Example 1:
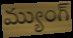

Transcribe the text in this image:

మ్యుంగ్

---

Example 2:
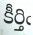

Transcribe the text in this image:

కీర్తిఁ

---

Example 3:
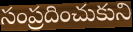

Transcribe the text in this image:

సంప్రదించుకుని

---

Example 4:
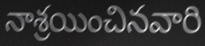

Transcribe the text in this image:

నాశ్రయించినవారి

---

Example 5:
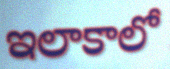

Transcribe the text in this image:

ఇలాకాలో